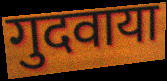
गुदवाया